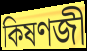
কিষণজী